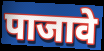
पाजावे